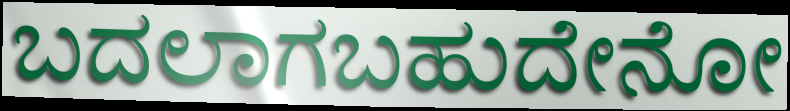
ಬದಲಾಗಬಹುದೇನೋ